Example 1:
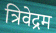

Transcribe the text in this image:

त्रिवेद्रम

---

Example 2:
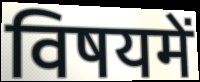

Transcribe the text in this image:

विषयमें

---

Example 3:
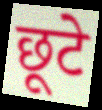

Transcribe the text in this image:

छूटे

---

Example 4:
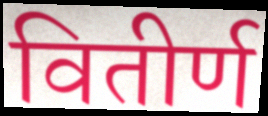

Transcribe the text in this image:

वितीर्ण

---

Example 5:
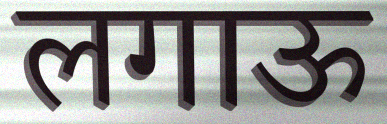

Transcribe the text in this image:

लगाऊ